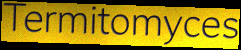
Termitomyces